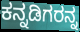
ಕನ್ನಡಿಗರನ್ನ